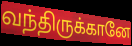
வந்திருக்கானே